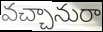
వచ్చానురా